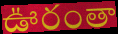
ఊరంతా